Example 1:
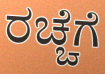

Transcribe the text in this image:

ರಚ್ಚೆಗೆ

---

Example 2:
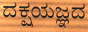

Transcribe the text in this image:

ದಕ್ಷಯಜ್ಞದ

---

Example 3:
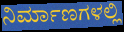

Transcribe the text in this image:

ನಿರ್ಮಾಣಗಳಲ್ಲಿ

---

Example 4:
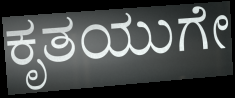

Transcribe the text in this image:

ಕೃತಯುಗೇ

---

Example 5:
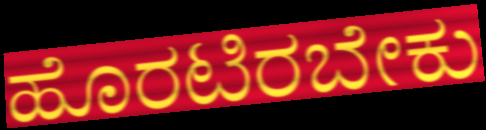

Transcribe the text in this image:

ಹೊರಟಿರಬೇಕು